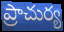
ప్రాచుర్య